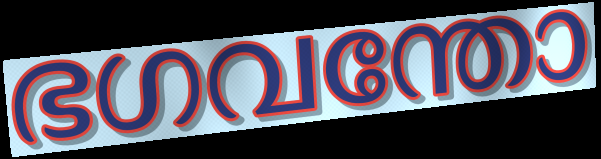
ഭഗവന്തോ